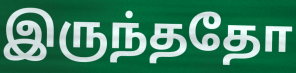
இருந்ததோ